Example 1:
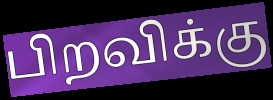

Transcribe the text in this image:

பிறவிக்கு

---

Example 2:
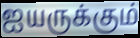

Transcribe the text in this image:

ஐயருக்கும்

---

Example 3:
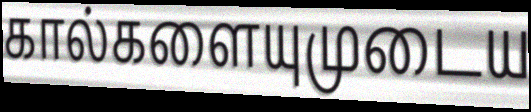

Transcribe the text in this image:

கால்களையுமுடைய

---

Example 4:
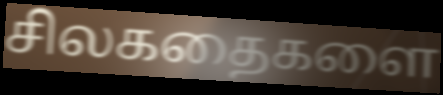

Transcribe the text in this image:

சிலகதைகளை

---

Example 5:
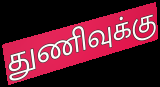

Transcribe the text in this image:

துணிவுக்கு